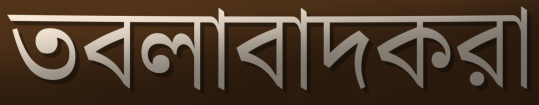
তবলাবাদকরা